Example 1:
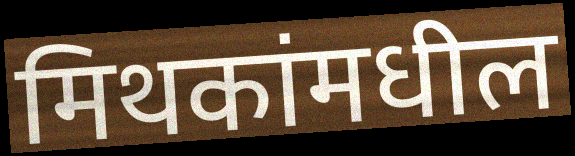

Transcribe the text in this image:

मिथकांमधील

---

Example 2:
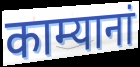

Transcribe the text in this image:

काम्यानां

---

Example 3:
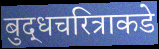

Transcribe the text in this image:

बुद्धचरित्राकडे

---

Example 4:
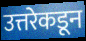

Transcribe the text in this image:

उत्तरेकडून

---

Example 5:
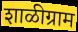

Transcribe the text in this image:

शाळीग्राम